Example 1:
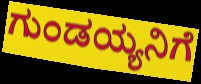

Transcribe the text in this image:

ಗುಂಡಯ್ಯನಿಗೆ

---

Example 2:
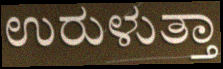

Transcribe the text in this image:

ಉರುಳುತ್ತಾ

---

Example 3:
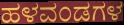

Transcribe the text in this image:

ಹಳವಂಡಗಳ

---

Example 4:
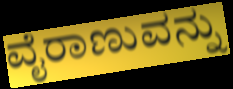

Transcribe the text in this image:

ವೈರಾಣುವನ್ನು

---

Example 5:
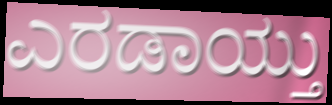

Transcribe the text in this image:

ಎರಡಾಯ್ತು